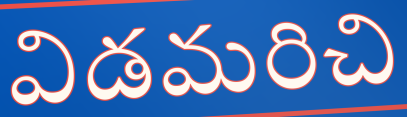
విడమరిచి